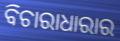
ବିଚାରାଧାରାର